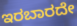
ಇರಬಾರದೇ